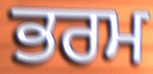
ਭਰਮ